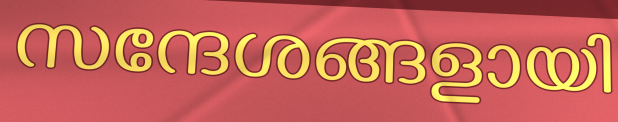
സന്ദേശങ്ങളായി